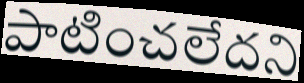
పాటించలేదని